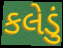
કલેડું